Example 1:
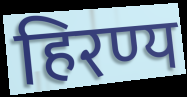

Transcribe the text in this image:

हिरण्य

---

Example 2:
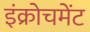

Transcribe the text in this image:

इंक्रोचमेंट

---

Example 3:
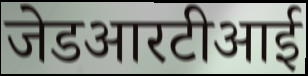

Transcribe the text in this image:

जेडआरटीआई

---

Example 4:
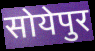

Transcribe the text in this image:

सोयेपुर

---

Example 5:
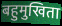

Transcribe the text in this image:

बहुमुखिता